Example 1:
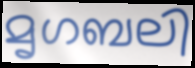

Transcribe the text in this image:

മൃഗബലി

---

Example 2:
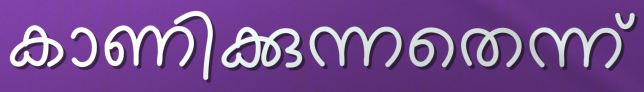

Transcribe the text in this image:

കാണിക്കുന്നതെന്ന്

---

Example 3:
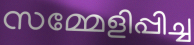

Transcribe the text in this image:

സമ്മേളിപ്പിച്ച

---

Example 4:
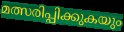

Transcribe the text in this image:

മത്സരിപ്പിക്കുകയും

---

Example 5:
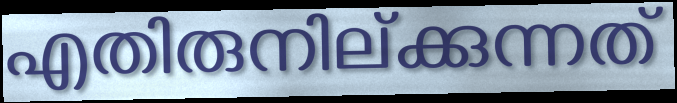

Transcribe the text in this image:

എതിരുനില്ക്കുന്നത്